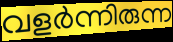
വളർന്നിരുന്ന